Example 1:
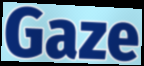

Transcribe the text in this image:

Gaze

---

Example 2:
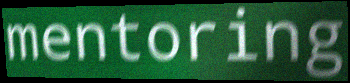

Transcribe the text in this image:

mentoring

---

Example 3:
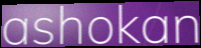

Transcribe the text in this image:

ashokan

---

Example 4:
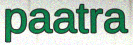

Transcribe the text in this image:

paatra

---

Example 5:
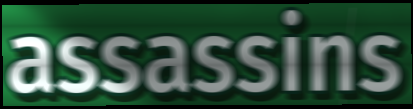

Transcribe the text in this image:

assassins